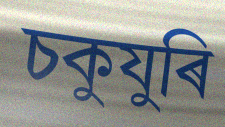
চকুযুৰি